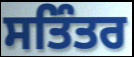
ਸਤਿੰਤਰ